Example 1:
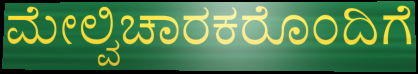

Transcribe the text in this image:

ಮೇಲ್ವಿಚಾರಕರೊಂದಿಗೆ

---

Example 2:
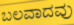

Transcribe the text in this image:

ಬಲವಾದವು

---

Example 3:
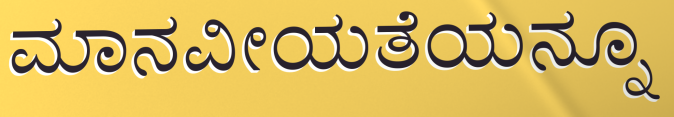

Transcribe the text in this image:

ಮಾನವೀಯತೆಯನ್ನೂ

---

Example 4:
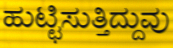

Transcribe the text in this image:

ಹುಟ್ಟಿಸುತ್ತಿದ್ದುವು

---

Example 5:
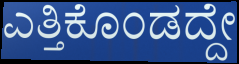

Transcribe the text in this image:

ಎತ್ತಿಕೊಂಡದ್ದೇ